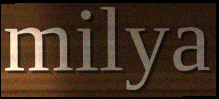
milya